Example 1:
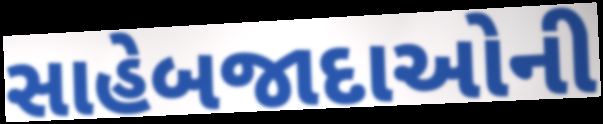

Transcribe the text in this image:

સાહેબજાદાઓની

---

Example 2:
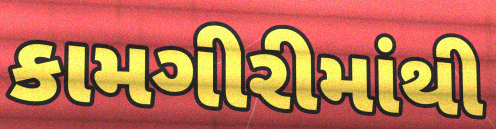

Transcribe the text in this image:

કામગીરીમાંથી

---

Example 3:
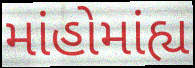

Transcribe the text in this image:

માંહોમાંહ્ય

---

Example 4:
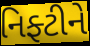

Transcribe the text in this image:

નિફ્ટીને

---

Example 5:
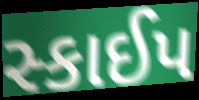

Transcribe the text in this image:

સ્કાઈપ